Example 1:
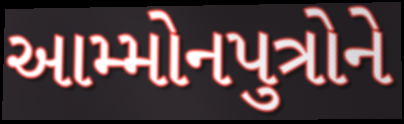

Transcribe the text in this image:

આમ્મોનપુત્રોને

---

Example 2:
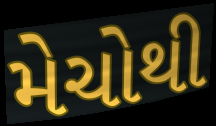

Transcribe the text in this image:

મેચોથી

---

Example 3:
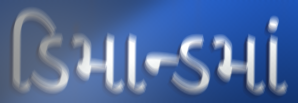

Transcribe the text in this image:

ડિમાન્ડમાં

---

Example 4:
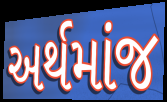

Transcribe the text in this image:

અર્થમાંજ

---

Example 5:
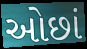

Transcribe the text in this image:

ઓછાં